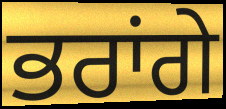
ਭਰਾਂਗੇ